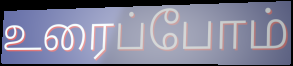
உரைப்போம்